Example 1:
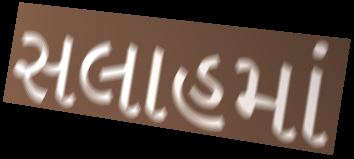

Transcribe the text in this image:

સલાહમાં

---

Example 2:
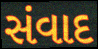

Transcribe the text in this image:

સંવાદ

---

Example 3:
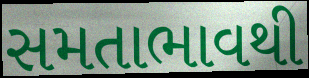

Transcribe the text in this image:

સમતાભાવથી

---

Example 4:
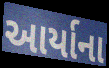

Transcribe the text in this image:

આર્યાના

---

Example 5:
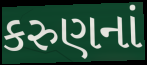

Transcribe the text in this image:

કરુણનાં